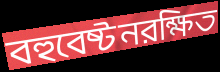
বহুবেষ্টনরক্ষিত